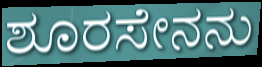
ಶೂರಸೇನನು